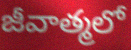
జీవాత్మలో